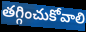
తగ్గించుకోవాలి